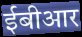
ईबीआर